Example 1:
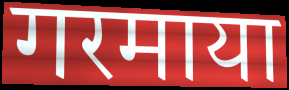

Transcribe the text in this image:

गरमाया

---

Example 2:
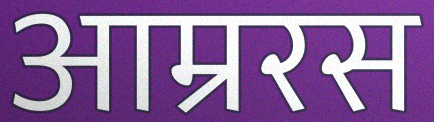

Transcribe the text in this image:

आम्ररस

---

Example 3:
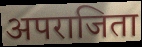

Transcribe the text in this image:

अपराजिता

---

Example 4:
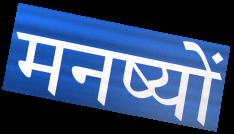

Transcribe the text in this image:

मनष्यों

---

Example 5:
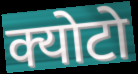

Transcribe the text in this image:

क्‍योटो